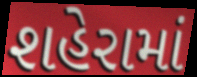
શહેરામાં